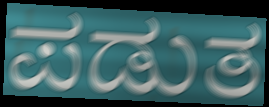
ಪಡುತ